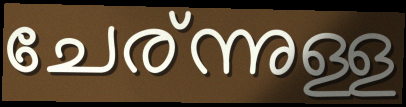
ചേര്ന്നുള്ള